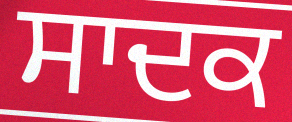
ਸਾਦਕ